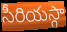
సీరియస్గా